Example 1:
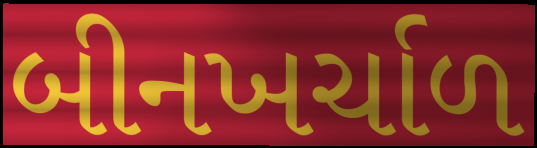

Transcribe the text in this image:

બીનખર્ચાળ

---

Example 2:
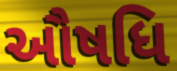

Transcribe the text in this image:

ઔષધિ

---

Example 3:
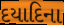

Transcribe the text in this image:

દયાદિના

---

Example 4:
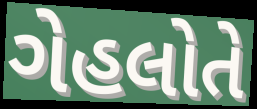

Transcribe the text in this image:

ગેહલોતે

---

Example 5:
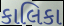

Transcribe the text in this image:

કાલિકા